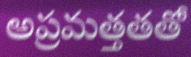
అప్రమత్తతతో